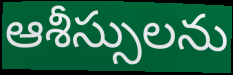
ఆశీస్సులను